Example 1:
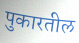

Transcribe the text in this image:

पुकारतील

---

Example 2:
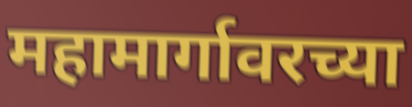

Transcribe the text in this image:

महामार्गावरच्या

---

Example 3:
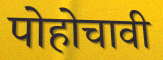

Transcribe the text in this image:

पोहोचावी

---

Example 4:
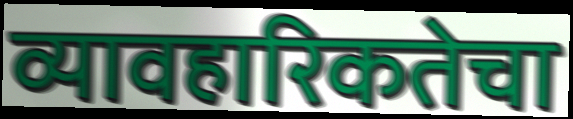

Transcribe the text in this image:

व्यावहारिकतेचा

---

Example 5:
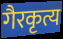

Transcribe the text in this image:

गैरकृत्य